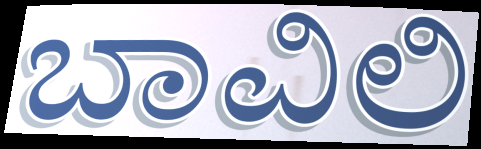
ಬಾವಿಲಿ